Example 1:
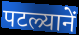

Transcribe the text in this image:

पटल्यानें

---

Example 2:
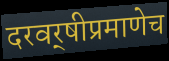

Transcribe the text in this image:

दरवर्षीप्रमाणेच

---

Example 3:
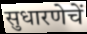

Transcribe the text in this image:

सुधारणेचें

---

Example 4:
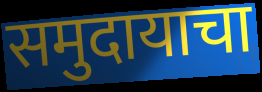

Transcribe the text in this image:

समुदायाचा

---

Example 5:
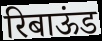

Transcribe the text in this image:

रिबाऊंड